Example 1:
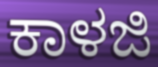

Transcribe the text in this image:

ಕಾಳಜಿ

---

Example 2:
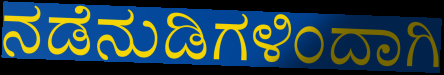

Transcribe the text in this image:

ನಡೆನುಡಿಗಳಿಂದಾಗಿ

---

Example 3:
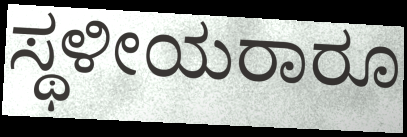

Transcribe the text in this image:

ಸ್ಥಳೀಯರಾರೂ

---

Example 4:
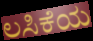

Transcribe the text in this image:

ಲಸಿಕೆಯ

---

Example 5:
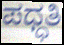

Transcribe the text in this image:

ಪಧ್ಧತಿ